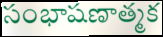
సంభాషణాత్మక